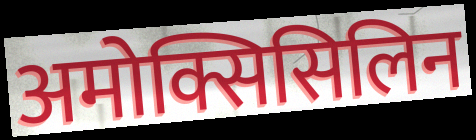
अमोक्सिसिलिन